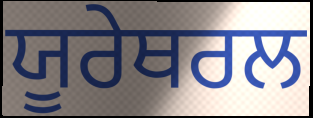
ਯੂਰੇਥਰਲ